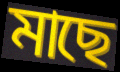
মাছে